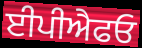
ਈਪੀਐਫਓ